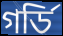
গর্ডি